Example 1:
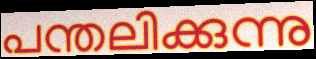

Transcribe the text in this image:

പന്തലിക്കുന്നു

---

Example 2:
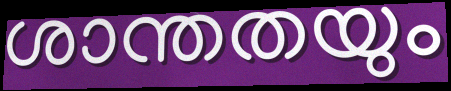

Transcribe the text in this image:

ശാന്തതയും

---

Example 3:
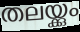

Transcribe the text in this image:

തലയ്ക്കും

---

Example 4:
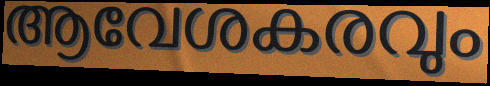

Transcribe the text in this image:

ആവേശകരവും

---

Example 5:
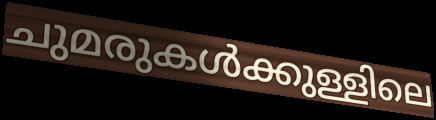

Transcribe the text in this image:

ചുമരുകൾക്കുള്ളിലെ